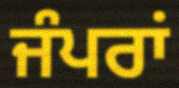
ਜੰਪਰਾਂ